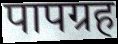
पापग्रह